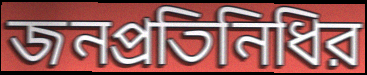
জনপ্রতিনিধির